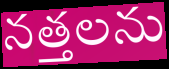
నత్తలను